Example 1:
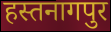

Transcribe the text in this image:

हस्तनागपुर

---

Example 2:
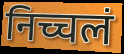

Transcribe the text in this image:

निच्चलं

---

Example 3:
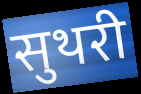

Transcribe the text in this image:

सुथरी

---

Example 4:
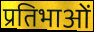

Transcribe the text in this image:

प्रतिभाओं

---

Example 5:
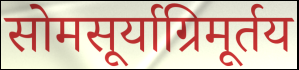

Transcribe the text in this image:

सोमसूर्याग्रिमूर्तय